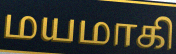
மயமாகி